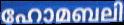
ഹോമബലി